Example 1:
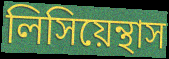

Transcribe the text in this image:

লিসিয়েন্থাস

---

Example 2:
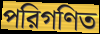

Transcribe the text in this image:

পরিগণিত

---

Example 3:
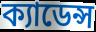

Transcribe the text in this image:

ক্যাডেন্স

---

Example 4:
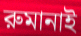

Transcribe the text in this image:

রুমানাই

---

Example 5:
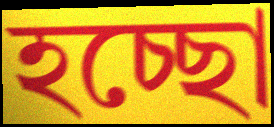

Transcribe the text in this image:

হচ্ছো